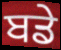
ਬਡੇ